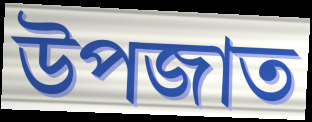
উপজাত